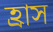
হ্রাস